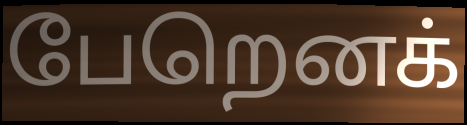
பேறெனக்